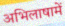
अभिलाषामें